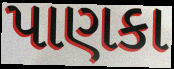
પાણકા